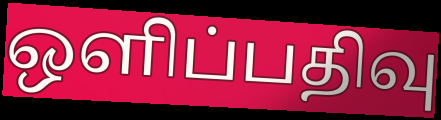
ஒளிப்பதிவு